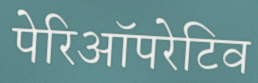
पेरिऑपरेटिव